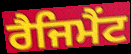
ਰੈਜਿਮੈਂਟ